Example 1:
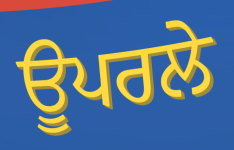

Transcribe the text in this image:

ਊਪਰਲੇ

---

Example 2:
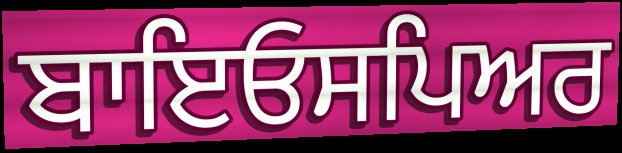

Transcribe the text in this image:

ਬਾਇਓਸਪਿਅਰ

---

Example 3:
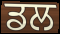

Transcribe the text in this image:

ਡਲ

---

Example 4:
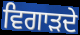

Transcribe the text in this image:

ਵਿਗਾੜਦੇ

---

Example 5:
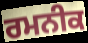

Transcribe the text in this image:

ਰਮਨੀਕ